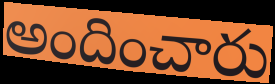
అందించారు